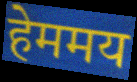
हेममय